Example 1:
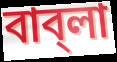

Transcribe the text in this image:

বাব্‌লা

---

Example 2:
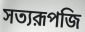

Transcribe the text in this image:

সত্যরূপজি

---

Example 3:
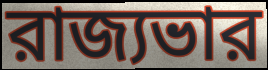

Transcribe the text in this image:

রাজ্যভার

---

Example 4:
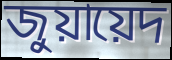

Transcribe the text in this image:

জুয়ায়েদ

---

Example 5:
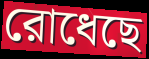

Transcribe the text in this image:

রোধেছে